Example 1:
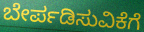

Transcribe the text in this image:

ಬೇರ್ಪಡಿಸುವಿಕೆಗೆ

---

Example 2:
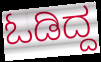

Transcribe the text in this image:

ಓಡಿದ್ದ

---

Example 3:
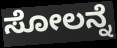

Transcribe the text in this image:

ಸೋಲನ್ನೆ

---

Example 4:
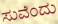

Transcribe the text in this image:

ಸುವೆಂದು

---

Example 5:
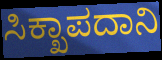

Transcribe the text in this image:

ಸಿಕ್ಖಾಪದಾನಿ